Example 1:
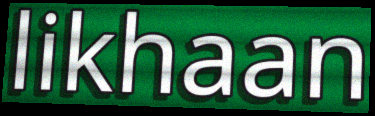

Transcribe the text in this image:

likhaan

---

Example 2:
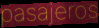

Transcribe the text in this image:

pasajeros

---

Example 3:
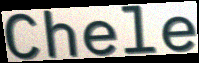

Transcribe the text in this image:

Chele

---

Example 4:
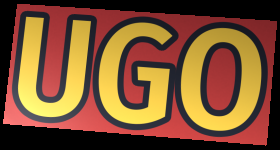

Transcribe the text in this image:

UGO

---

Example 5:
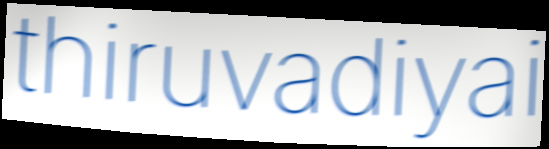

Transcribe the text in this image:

thiruvadiyai